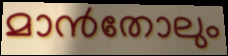
മാൻതോലും